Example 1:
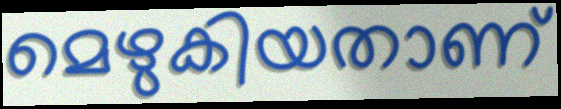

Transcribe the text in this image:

മെഴുകിയതാണ്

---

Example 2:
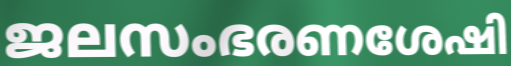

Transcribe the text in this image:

ജലസംഭരണശേഷി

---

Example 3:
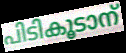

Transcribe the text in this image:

പിടികൂടാന്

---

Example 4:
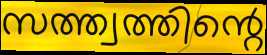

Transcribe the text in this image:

സത്ത്വത്തിന്റെ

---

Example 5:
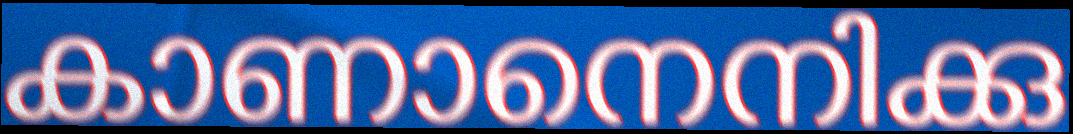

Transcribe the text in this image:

കാണാനെനിക്കു